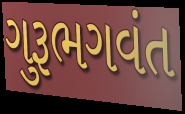
ગુરૂભગવંત